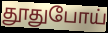
தூதுபோய்